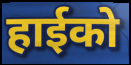
हाईको